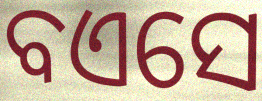
ବଏସେ